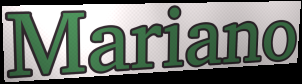
Mariano